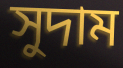
সুদাম